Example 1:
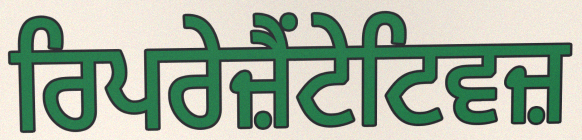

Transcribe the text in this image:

ਰਿਪਰੇਜ਼ੈਂਟੇਟਿਵਜ਼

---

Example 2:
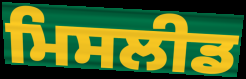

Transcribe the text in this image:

ਮਿਸਲੀਡ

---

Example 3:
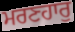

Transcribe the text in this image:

ਮਰਣਹਾਰੁ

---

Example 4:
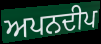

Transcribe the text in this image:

ਅਪਨਦੀਪ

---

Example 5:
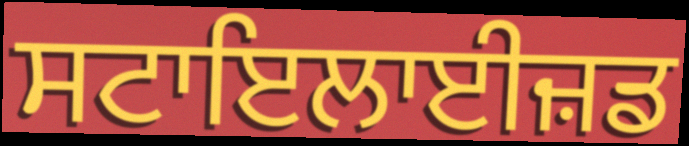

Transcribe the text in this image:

ਸਟਾਇਲਾਈਜ਼ਡ